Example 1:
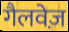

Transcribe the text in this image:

गैलवेज़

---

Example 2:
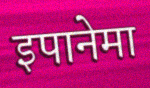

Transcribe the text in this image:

इपानेमा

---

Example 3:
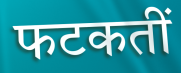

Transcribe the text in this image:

फटकतीं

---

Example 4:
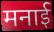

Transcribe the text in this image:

मनाई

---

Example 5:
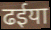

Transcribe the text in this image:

ढईया